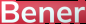
Bener